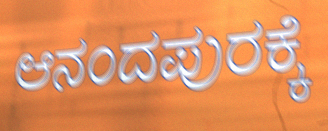
ಆನಂದಪುರಕ್ಕೆ